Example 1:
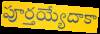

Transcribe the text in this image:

పూర్తయ్యేదాకా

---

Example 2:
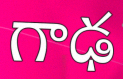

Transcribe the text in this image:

గాఢ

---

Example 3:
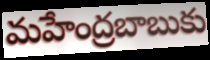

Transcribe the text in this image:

మహేంద్రబాబుకు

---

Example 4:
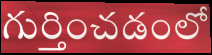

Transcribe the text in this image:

గుర్తించడంలో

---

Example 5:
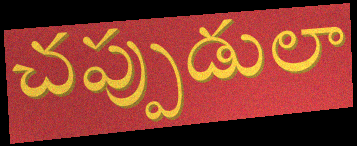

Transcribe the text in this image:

చప్పుడులా